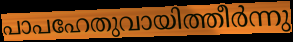
പാപഹേതുവായിത്തീർന്നു